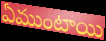
ఏముంటాయి